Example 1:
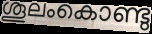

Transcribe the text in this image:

ശൂലംകൊണ്ടു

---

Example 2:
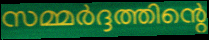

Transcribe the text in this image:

സമ്മർദ്ദത്തിന്റെ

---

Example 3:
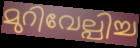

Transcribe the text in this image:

മുറിവേല്പിച്ച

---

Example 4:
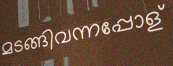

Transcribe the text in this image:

മടങ്ങിവന്നപ്പോള്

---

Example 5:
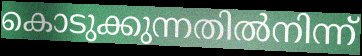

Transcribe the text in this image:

കൊടുക്കുന്നതിൽനിന്ന്